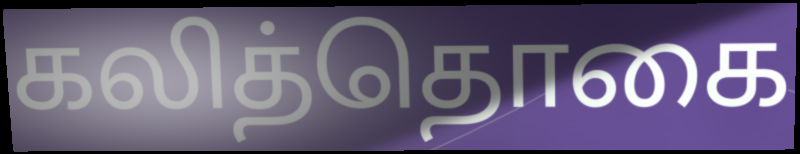
கலித்தொகை